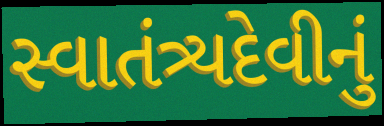
સ્વાતંત્ર્યદેવીનું